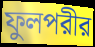
ফুলপরীর